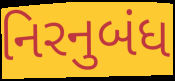
નિરનુબંધ